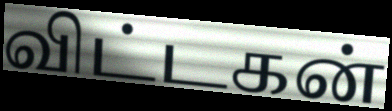
விட்டகன்